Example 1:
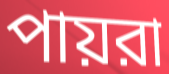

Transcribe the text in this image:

পায়রা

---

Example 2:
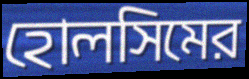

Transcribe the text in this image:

হোলসিমের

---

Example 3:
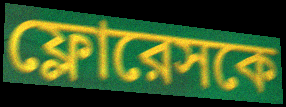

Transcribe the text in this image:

ফ্লোরেসকে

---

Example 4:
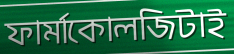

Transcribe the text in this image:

ফার্মাকোলজিটাই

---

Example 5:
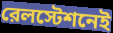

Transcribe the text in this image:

রেলস্টেশনেই